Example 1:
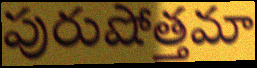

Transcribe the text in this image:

పురుషోత్తమా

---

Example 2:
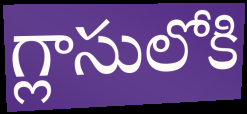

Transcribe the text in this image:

గ్లాసులోకి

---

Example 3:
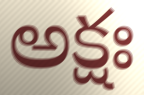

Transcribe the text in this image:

అక్షః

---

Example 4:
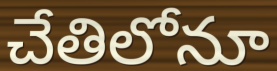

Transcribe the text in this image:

చేతిలోనూ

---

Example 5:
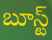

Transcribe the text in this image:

బూస్ట్